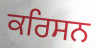
ਕਰਿਸਨ